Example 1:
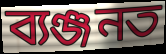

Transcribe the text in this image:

ব্যঞ্জনত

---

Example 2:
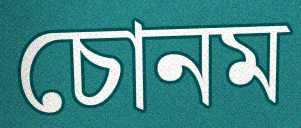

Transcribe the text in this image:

চোনম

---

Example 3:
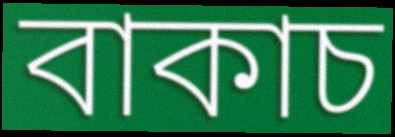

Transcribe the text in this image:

বাকাচ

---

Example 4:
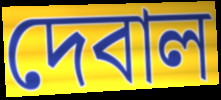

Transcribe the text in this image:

দেবাল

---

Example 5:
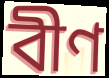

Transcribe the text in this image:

বীণ